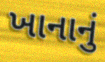
ખાનાનું